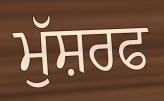
ਮੁੱਸ਼ਰਫ